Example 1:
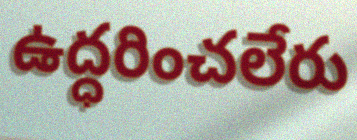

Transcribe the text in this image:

ఉద్ధరించలేరు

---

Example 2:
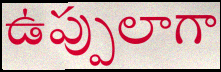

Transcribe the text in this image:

ఉప్పులాగా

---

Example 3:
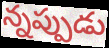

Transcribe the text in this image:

న్నప్పుడు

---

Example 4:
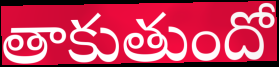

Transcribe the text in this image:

తాకుతుందో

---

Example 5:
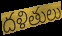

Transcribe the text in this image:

దళితులు